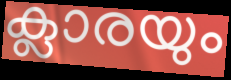
ക്ലാരയും